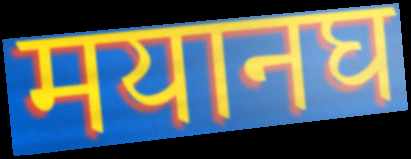
मयानघ